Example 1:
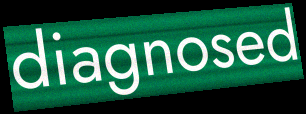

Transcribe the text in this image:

diagnosed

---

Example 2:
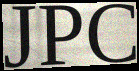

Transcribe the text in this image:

JPC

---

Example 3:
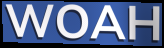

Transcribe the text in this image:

WOAH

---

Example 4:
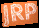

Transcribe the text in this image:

JRP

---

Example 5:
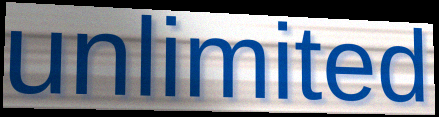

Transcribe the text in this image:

unlimited